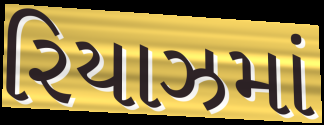
રિયાઝમાં